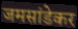
जमसांडेकर